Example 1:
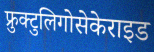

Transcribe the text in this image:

फ्रुक्टुलिगोसेकेराइड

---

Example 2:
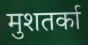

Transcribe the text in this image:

मुशतर्का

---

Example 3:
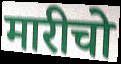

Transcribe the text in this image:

मारीचो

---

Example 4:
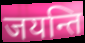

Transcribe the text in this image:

जयन्ति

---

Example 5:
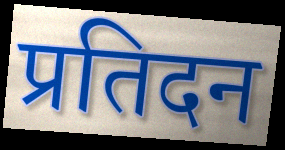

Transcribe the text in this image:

प्रतिदन